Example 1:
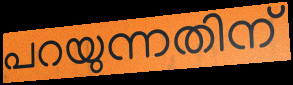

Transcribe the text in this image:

പറയുന്നതിന്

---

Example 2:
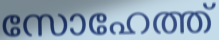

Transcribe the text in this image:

സോഹേത്ത്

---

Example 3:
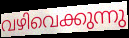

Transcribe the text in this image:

വഴിവെക്കുന്നു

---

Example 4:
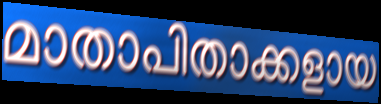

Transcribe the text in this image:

മാതാപിതാക്കളായ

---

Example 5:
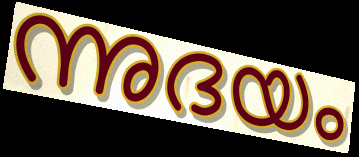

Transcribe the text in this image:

ന്നുദയം